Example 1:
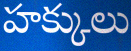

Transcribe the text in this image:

హక్కులు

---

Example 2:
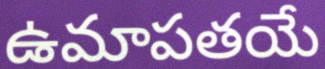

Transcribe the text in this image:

ఉమాపతయే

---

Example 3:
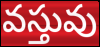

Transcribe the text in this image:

వస్తువు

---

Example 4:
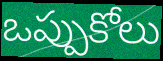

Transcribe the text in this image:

ఒప్పుకోలు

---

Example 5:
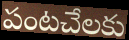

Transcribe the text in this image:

పంటచేలకు